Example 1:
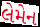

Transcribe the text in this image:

લેમેન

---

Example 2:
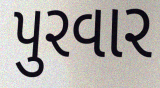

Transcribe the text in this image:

પુરવાર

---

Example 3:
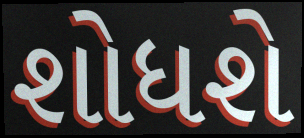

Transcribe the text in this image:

શોધશે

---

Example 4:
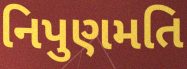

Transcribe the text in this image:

નિપુણમતિ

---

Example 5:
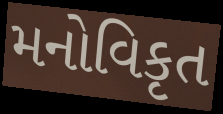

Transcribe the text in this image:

મનોવિકૃત